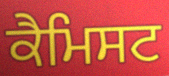
ਕੈਮਿਸਟ